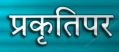
प्रकृतिपर